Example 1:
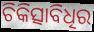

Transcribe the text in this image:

ଚିକିତ୍ସାବିଧିର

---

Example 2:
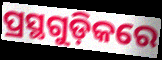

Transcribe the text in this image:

ପ୍ରସ୍ଥଗୁଡ଼ିକରେ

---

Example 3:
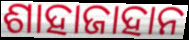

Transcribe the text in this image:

ଶାହାଜାହାନ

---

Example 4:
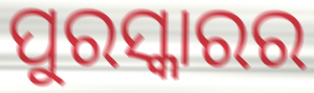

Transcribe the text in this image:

ପୁରସ୍କାରର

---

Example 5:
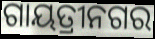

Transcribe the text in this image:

ଗାୟତ୍ରୀନଗର